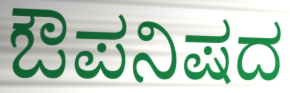
ಔಪನಿಷದ